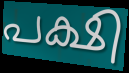
പക്ഷി